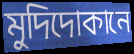
মুদিদোকানে